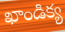
ఖాండిక్య